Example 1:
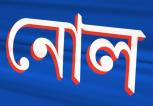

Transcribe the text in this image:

নোল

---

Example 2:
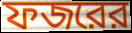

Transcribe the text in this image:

ফজরের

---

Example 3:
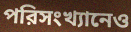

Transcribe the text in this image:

পরিসংখ্যানেও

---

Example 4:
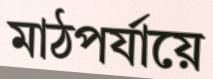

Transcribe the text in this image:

মাঠপর্যায়ে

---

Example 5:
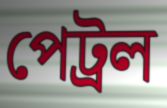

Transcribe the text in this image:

পেট্রল